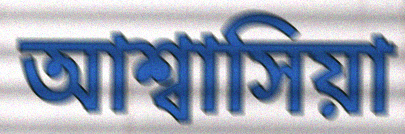
আশ্বাসিয়া